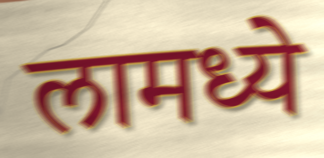
लामध्ये